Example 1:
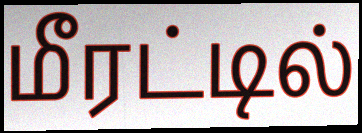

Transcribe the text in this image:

மீரட்டில்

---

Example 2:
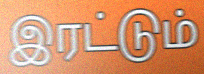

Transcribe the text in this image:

இரட்டும்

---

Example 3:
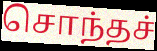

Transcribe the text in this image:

சொந்தச்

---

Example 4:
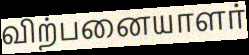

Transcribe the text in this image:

விற்பனையாளர்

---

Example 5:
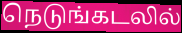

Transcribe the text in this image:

நெடுங்கடலில்